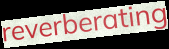
reverberating